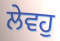
ਲੇਵਹੁ